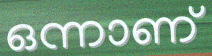
ഒന്നാണ്